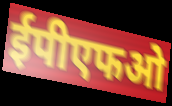
ईपीएफओ